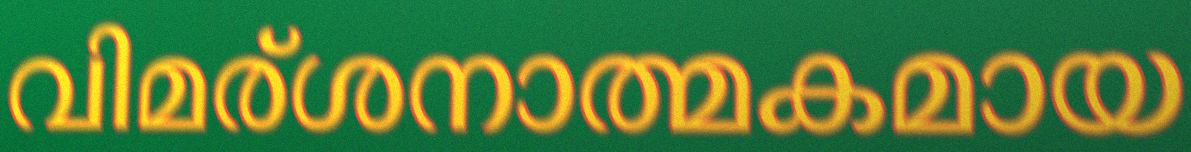
വിമര്ശനാത്മകമായ